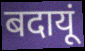
बदायूं